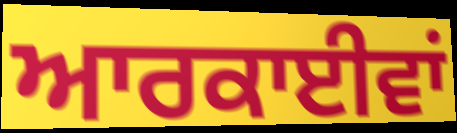
ਆਰਕਾਈਵਾਂ